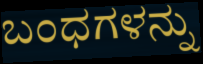
ಬಂಧಗಳನ್ನು